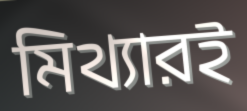
মিথ্যারই